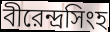
বীরেন্দ্রসিংহ